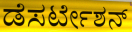
ಡೆಸರ್ಟೇಶನ್